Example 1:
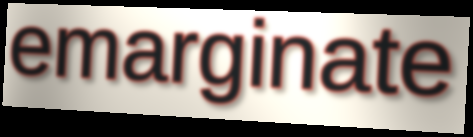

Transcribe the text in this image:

emarginate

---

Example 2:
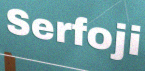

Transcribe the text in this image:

Serfoji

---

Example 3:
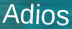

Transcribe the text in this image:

Adios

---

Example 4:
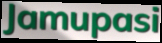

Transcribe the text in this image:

Jamupasi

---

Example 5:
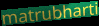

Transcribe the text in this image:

matrubharti